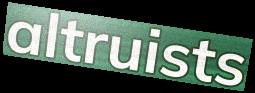
altruists